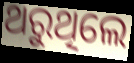
ଥରୁଥିଲେ